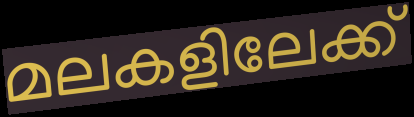
മലകളിലേക്ക്